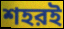
শহরই